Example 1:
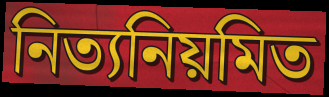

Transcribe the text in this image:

নিত্যনিয়মিত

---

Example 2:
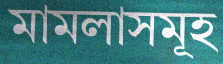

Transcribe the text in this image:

মামলাসমূহ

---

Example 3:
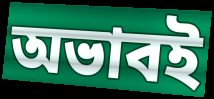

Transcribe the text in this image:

অভাবই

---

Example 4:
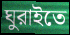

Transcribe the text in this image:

ঘুরাইতে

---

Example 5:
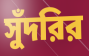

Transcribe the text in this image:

সুঁদরির